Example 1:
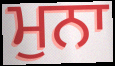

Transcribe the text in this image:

ਮੁਨਾ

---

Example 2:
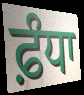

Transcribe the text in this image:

ਫ਼ੰਧਾ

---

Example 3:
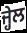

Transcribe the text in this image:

ਜ੍ਹੇਲ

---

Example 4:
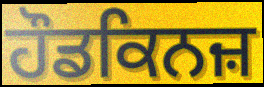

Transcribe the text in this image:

ਹੌਡਕਿਨਜ਼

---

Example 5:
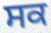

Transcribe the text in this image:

ਸਕ